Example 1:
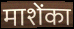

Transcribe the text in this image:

माशेंका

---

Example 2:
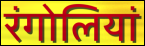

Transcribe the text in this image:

रंगोलियां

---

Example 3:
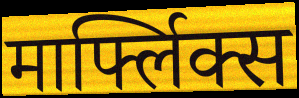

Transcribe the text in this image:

मार्फ्लिक्स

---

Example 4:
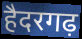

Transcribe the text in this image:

हैदरगढ़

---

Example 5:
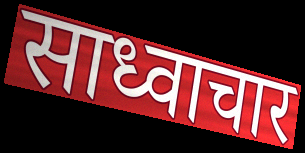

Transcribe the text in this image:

साध्वाचार